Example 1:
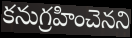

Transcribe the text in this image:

కనుగ్రహించెనని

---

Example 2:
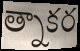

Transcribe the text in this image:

త్నాకర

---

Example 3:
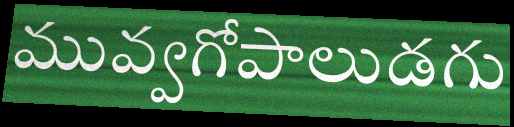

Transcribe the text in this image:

మువ్వగోపాలుడగు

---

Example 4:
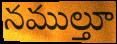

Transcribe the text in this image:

నముల్తూ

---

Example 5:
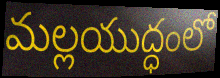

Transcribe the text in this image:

మల్లయుద్ధంలో